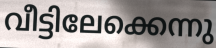
വീട്ടിലേക്കെന്നു